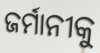
ଜର୍ମାନୀକୁ